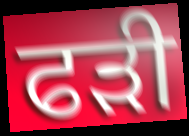
ਫੜੀ